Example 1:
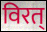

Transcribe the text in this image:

विरत्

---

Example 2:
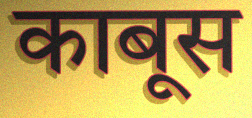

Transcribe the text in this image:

काबूस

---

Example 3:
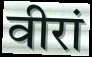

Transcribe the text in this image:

वीरां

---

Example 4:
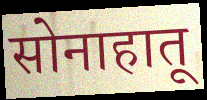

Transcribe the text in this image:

सोनाहातू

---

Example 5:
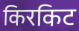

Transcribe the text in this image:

किरकिट